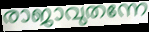
രാജാവുതന്നേ